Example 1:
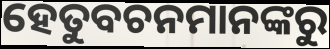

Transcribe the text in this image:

ହେତୁବଚନମାନଙ୍କରୁ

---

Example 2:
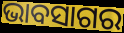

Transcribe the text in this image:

ଭାବସାଗର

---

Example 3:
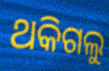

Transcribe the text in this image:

ଥକିଗଲୁ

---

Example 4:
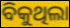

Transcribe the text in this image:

ବିକୁଥିଲା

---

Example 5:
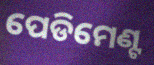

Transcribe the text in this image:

ପେଡିମେଣ୍ଟ